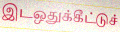
இடஒதுக்கீட்டுச்